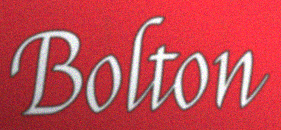
Bolton